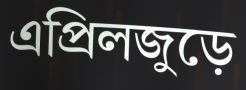
এপ্রিলজুড়ে